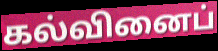
கல்வினைப்